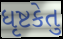
ધૃષ્ટકેતુ